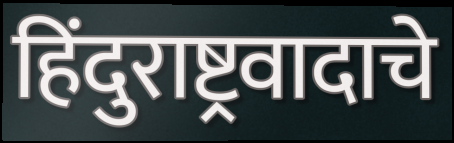
हिंदुराष्ट्रवादाचे